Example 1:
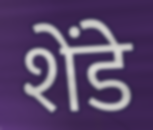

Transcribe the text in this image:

शेंडे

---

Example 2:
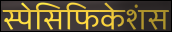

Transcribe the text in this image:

स्पेसिफिकेशंस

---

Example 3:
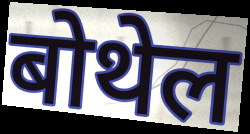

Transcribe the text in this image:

बोथेल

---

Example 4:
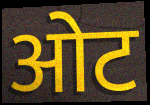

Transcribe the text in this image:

ओट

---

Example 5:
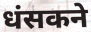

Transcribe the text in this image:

धंसकने